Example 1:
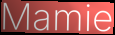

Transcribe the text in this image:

Mamie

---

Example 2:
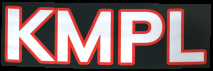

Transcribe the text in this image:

KMPL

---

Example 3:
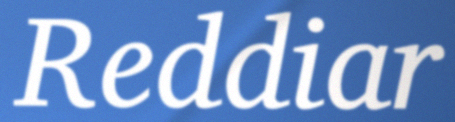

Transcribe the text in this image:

Reddiar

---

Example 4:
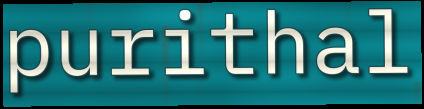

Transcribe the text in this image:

purithal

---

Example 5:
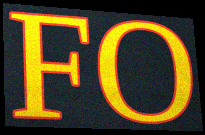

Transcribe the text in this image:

FO